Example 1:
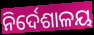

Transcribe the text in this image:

ନିର୍ଦେଶାଳୟ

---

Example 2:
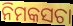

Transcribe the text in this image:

ନିମକସଚା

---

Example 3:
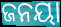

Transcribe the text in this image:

ଜନୟା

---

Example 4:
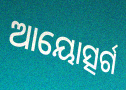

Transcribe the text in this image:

ଆୟୋତ୍ସର୍ଗ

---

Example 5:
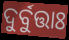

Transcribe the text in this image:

ଦୁର୍ବୁତ୍ତାଃ